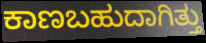
ಕಾಣಬಹುದಾಗಿತ್ತು